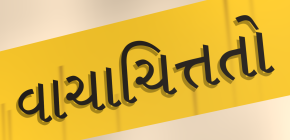
વાચાચિત્તતો